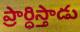
ప్రార్ధిస్తాడు